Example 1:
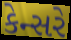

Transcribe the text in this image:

કેન્સરે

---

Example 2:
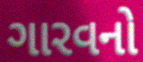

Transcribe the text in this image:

ગારવનો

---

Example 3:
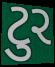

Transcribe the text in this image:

ટુર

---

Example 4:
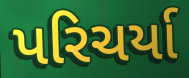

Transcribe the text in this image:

પરિચર્યા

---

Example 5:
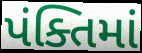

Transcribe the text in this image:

પંક્તિમાં